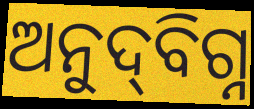
ଅନୁଦ୍‌ବିଗ୍ନ